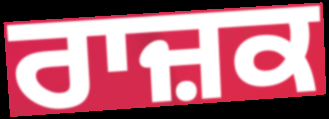
ਰਾਜ਼ਕ